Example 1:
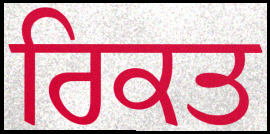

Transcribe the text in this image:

ਰਿਕਤ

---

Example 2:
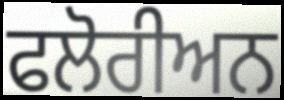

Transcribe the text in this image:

ਫਲੋਰੀਅਨ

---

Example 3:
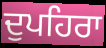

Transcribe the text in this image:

ਦੁਪਹਿਰਾ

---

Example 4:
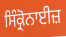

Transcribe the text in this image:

ਸਿੰਕ੍ਰੋਨਾਈਜ਼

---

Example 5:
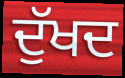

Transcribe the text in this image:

ਦੁੱਖਦ